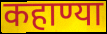
कहाण्या